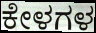
ಕೇಳಗಳ